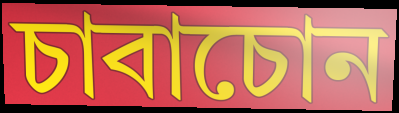
চাবাচোন